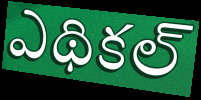
ఎథికల్